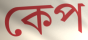
কেপ